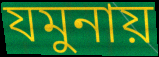
যমুনায়